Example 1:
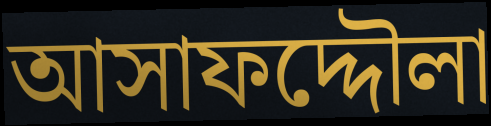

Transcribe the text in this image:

আসাফদ্দৌলা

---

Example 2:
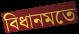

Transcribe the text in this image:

বিধানমতে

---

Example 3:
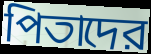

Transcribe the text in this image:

পিতাদের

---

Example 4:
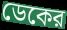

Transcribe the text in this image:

ডেকের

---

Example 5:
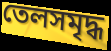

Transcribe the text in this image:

তেলসমৃদ্ধ